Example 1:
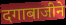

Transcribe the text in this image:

दगाबाजीने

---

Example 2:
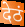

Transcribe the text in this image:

देठं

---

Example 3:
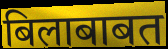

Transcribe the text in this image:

बिलाबाबत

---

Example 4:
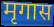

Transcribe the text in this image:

मृगास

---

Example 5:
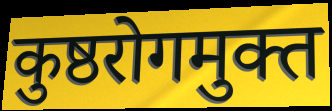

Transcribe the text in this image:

कुष्ठरोगमुक्त